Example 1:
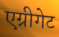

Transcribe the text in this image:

एग्रीगेट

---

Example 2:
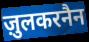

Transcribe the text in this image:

ज़ुलकरनैन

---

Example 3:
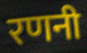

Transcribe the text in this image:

रणनी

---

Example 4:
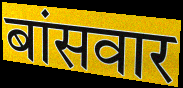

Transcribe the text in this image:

बांसवार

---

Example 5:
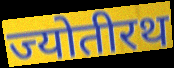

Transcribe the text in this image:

ज्योतीरथ